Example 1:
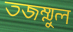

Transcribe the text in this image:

তজম্মুল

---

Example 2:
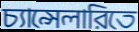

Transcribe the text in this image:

চ্যান্সেলারিতে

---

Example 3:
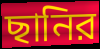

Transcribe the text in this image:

ছানির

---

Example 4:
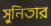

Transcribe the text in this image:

সুনিতার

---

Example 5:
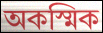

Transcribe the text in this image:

অকস্মিক